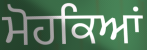
ਮੋਹਕਿਆਂ